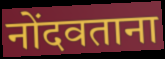
नोंदवताना